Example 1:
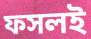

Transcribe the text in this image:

ফসলই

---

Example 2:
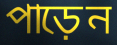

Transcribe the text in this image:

পাড়েন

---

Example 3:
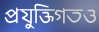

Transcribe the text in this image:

প্রযুক্তিগতও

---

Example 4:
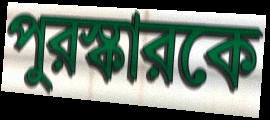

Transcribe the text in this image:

পুরস্কারকে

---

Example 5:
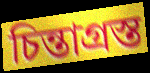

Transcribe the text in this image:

চিন্তাগ্রস্ত